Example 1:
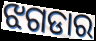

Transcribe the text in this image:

ଝଗଡାର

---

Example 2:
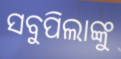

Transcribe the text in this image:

ସବୁପିଲାଙ୍କୁ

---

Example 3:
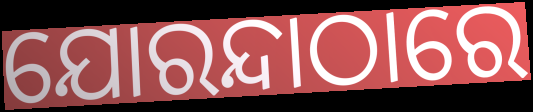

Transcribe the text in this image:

ଯୋରନ୍ଦାଠାରେ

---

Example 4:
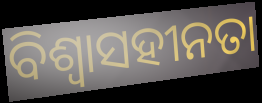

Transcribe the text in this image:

ବିଶ୍ୱାସହୀନତା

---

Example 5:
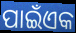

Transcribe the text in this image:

ପାଇଁଏକ